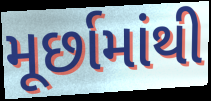
મૂર્છામાંથી